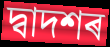
দ্বাদশৰ